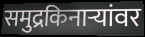
समुद्रकिनाऱ्यांवर